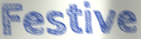
Festive